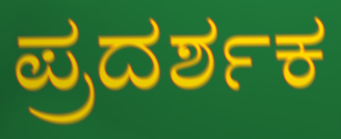
ಪ್ರದರ್ಶಕ